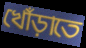
খোঁড়াতে